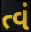
ત્વં